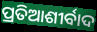
ପ୍ରତିଆଶୀର୍ବାଦ